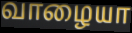
வாழையா